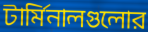
টার্মিনালগুলোর